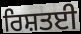
ਰਿਸ਼ਤਈ